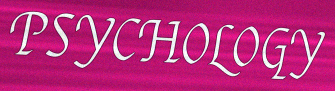
PSYCHOLOGY